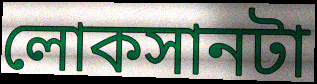
লোকসানটা